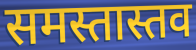
समस्तास्तव